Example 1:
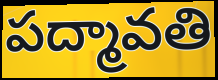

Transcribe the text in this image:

పద్మావతి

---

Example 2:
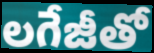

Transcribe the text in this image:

లగేజీతో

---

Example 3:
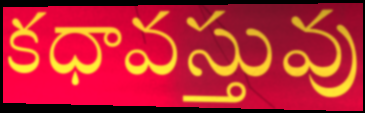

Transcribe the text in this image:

కధావస్తువు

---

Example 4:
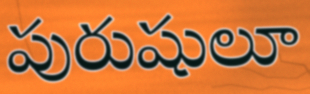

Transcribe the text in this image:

పురుషులూ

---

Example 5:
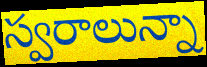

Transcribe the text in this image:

స్వరాలున్నా